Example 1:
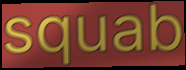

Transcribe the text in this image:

squab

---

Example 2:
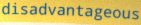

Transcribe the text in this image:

disadvantageous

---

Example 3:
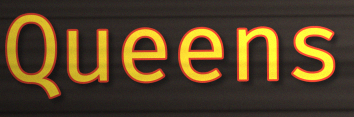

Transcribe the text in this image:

Queens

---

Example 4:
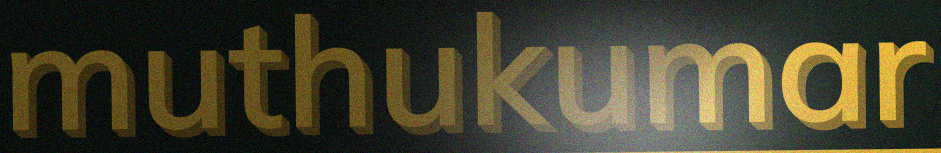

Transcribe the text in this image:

muthukumar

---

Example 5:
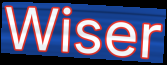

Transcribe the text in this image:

Wiser